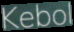
Kebol